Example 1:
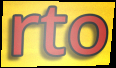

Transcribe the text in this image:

rto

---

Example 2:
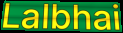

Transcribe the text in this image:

Lalbhai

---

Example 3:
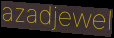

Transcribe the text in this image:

azadjewel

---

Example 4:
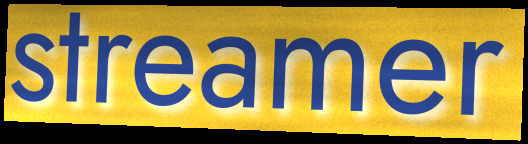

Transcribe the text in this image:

streamer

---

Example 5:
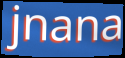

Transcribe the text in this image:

jnana